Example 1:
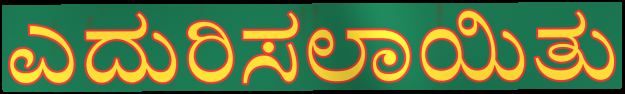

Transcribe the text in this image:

ಎದುರಿಸಲಾಯಿತು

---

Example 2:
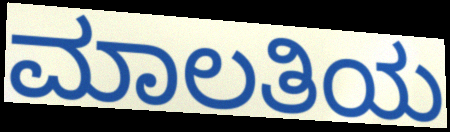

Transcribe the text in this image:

ಮಾಲತಿಯ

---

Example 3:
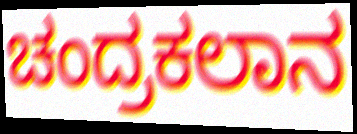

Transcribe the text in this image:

ಚಂದ್ರಕಲಾನ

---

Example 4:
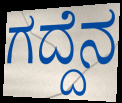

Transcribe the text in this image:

ಗದ್ದೆನ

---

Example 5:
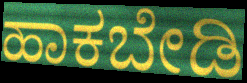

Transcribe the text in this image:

ಹಾಕಬೇಡಿ